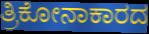
ತ್ರಿಕೋನಾಕಾರದ